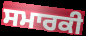
ਸਮਾਰਕੀ